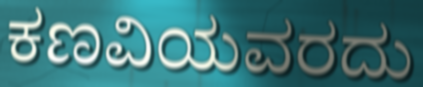
ಕಣವಿಯವರದು